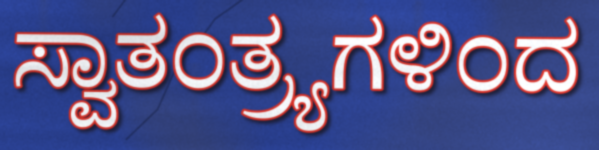
ಸ್ವಾತಂತ್ರ್ಯಗಳಿಂದ